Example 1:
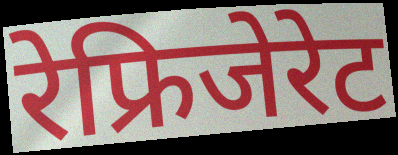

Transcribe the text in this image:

रेफ्रिजेरेट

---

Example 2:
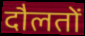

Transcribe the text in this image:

दौलतों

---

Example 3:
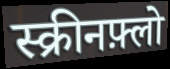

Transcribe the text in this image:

स्क्रीनफ़्लो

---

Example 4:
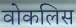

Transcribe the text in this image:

वोकलिस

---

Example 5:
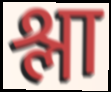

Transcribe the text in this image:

श्ला